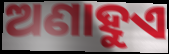
ଅଣାହୁଏ